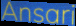
Ansari